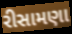
રીસામણા